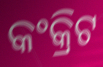
କଂକ୍ରିଟ